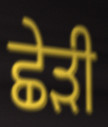
ਛੇੜੀ